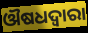
ଔଷଧଦ୍ବାରା